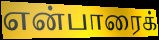
என்பாரைக்